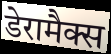
डेरामैक्स